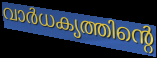
വാർധക്യത്തിന്റെ